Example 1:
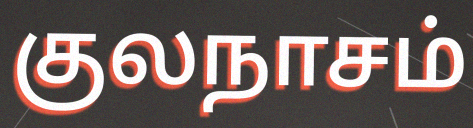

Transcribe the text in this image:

குலநாசம்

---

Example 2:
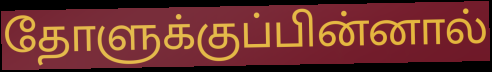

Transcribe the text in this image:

தோளுக்குப்பின்னால்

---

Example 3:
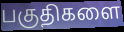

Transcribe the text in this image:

பகுதிகளை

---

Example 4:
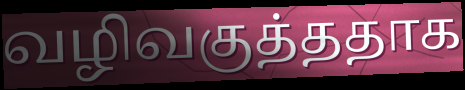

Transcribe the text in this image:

வழிவகுத்ததாக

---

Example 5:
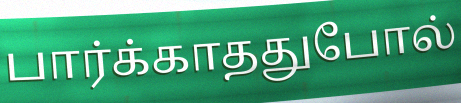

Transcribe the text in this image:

பார்க்காததுபோல்